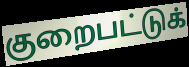
குறைபட்டுக்